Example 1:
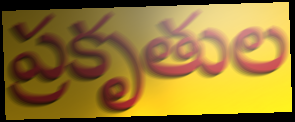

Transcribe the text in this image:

ప్రకృతుల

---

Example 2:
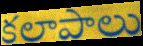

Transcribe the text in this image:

కలాపాలు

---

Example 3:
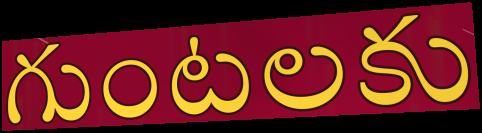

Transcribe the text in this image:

గుంటలకు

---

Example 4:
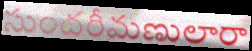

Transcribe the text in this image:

సుందరీమణులారా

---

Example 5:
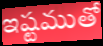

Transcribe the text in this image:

ఇష్టముతో